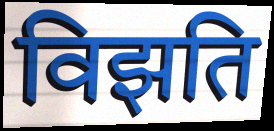
विझति